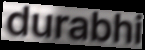
durabhi